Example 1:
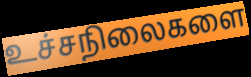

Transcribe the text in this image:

உச்சநிலைகளை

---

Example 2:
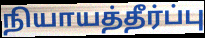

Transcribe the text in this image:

நியாயத்தீர்ப்பு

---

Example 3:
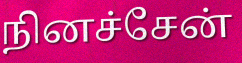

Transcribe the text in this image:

நினச்சேன்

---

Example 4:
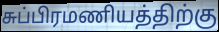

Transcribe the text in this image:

சுப்பிரமணியத்திற்கு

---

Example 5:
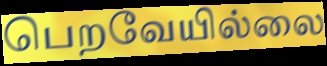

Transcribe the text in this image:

பெறவேயில்லை